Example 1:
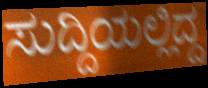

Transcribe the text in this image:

ಸುದ್ದಿಯಲ್ಲಿದ್ದ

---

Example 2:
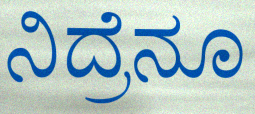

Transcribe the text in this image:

ನಿದ್ರೆನೂ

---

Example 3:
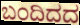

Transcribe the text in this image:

ಬಂದಿದದ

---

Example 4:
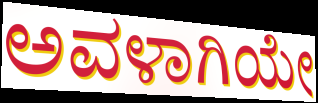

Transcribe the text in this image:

ಅವಳಾಗಿಯೇ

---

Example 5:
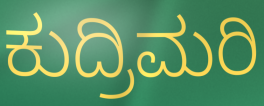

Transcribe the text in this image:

ಕುದ್ರಿಮರಿ